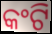
କଂଟି